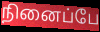
நினைப்பே